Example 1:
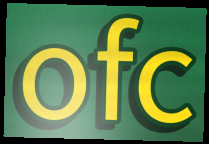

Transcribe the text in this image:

ofc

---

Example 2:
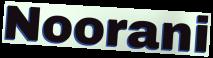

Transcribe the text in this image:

Noorani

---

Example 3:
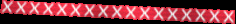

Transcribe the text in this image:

xxxxxxxxxxxxxxxxx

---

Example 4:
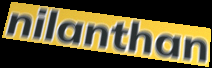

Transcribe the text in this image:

nilanthan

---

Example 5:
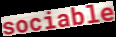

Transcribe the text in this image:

sociable